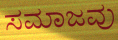
ಸಮಾಜವು